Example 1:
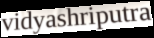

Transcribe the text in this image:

vidyashriputra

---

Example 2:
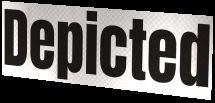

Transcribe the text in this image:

Depicted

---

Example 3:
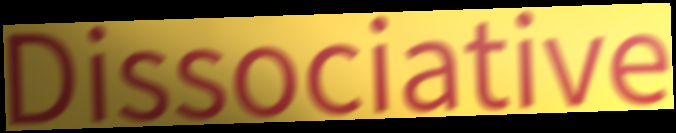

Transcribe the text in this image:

Dissociative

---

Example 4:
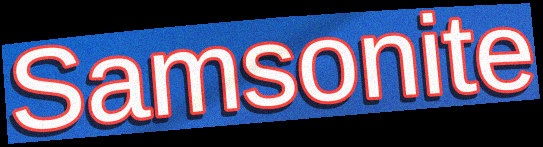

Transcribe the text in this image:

Samsonite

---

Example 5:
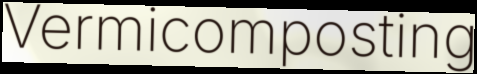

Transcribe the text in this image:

Vermicomposting